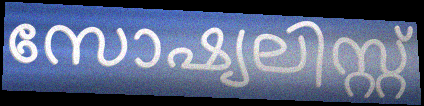
സോഷ്യലിസ്റ്റ്